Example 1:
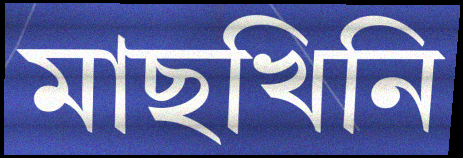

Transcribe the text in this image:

মাছখিনি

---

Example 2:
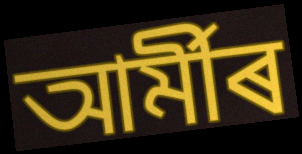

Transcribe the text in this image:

আৰ্মীৰ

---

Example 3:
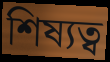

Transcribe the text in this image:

শিষ্যত্ব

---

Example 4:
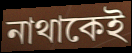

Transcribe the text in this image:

নাথাকেই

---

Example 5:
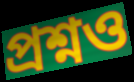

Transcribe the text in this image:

প্ৰশ্নও